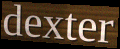
dexter